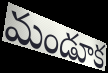
మండూక